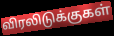
விரலிடுக்குகள்